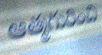
ఆత్మగురించి